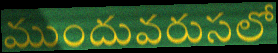
ముందువరుసలో